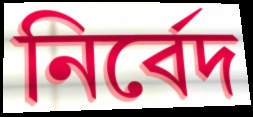
নির্বেদ